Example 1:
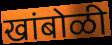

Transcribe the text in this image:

खांबोळी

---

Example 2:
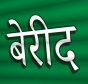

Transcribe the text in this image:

बेरीद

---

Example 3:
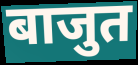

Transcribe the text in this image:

बाजुत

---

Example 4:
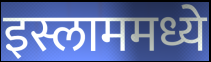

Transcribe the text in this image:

इस्लाममध्ये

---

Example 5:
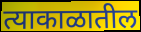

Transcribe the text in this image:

त्याकाळातील